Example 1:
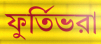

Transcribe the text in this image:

ফুর্তিভরা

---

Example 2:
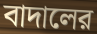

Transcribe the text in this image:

বাদালের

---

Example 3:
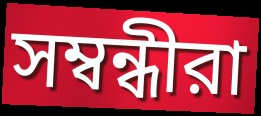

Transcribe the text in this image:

সম্বন্ধীরা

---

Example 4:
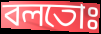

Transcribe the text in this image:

বলতোঃ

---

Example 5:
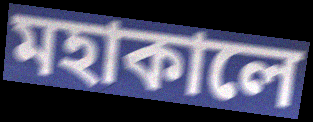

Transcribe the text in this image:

মহাকালে